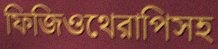
ফিজিওথেরাপিসহ